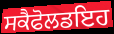
ਸਕੈਫੋਲਡਇਹ